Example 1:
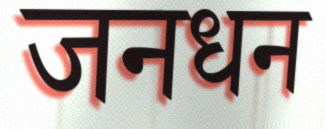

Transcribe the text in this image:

जनधन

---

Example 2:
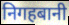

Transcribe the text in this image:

निगहबानी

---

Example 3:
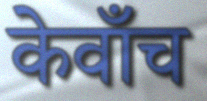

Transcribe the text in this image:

केवाँच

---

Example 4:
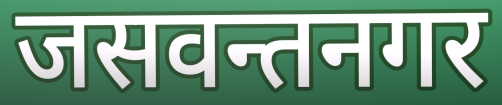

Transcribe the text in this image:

जसवन्तनगर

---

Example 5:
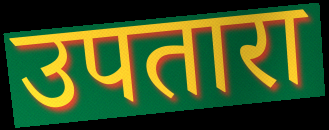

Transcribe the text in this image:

उपतारा